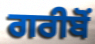
ਗਰੀਬੋਂ